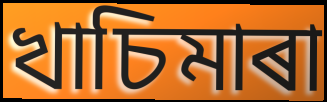
খাচিমাৰা